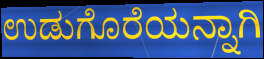
ಉಡುಗೊರೆಯನ್ನಾಗಿ